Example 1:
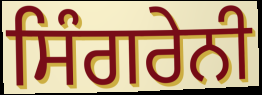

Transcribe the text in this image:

ਸਿੰਗਰੇਨੀ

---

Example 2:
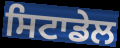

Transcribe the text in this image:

ਸਿਟਾਡੇਲ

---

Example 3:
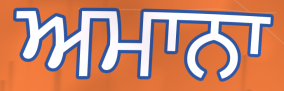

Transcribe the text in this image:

ਅਮਾਨਾ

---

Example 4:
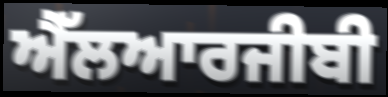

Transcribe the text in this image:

ਐੱਲਆਰਜੀਬੀ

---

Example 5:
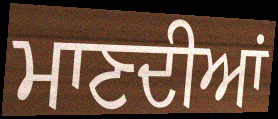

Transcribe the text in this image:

ਮਾਣਦੀਆਂ